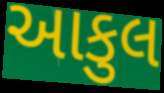
આકુલ